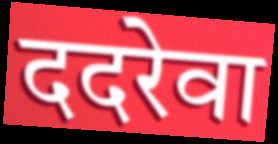
ददरेवा